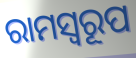
ରାମସ୍ୱରୂପ